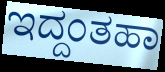
ಇದ್ದಂತಹಾ